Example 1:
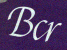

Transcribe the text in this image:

Bcr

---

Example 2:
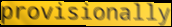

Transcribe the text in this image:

provisionally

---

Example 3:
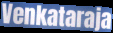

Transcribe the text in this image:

Venkataraja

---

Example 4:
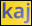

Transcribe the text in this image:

kaj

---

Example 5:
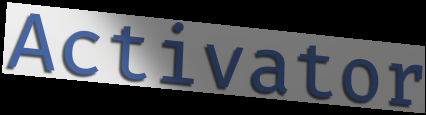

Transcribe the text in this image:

Activator